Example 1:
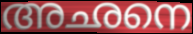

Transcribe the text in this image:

അഛനെ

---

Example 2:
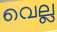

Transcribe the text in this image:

വെല്ല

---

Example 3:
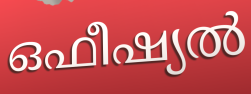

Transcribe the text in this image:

ഒഫീഷ്യൽ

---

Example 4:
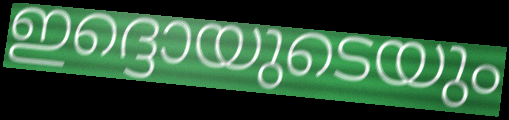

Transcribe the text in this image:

ഇദ്ദൊയുടെയും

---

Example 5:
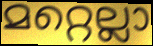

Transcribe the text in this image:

മറ്റെല്ലാ